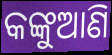
କଙ୍କୁଆଣି